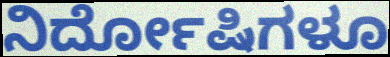
ನಿರ್ದೋಷಿಗಳೂ